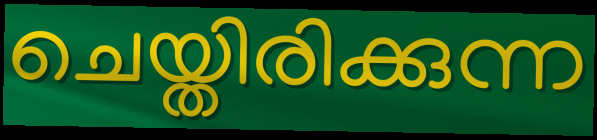
ചെയ്തിരിക്കുന്ന